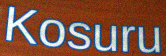
Kosuru